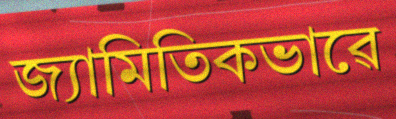
জ্যামিতিকভাৱে